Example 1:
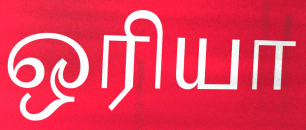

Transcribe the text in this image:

ஒரியா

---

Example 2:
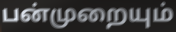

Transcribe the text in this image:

பன்முறையும்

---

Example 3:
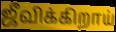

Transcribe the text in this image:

ஜீவிக்கிறாய்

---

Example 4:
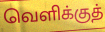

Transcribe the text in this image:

வெளிக்குத்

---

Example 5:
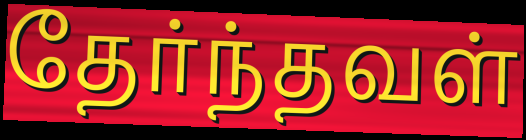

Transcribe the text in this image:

தேர்ந்தவள்